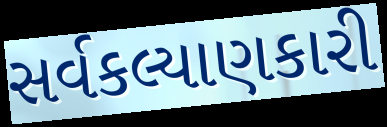
સર્વકલ્યાણકારી